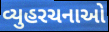
વ્યુહરચનાઓ